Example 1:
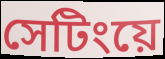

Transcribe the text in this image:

সেটিংয়ে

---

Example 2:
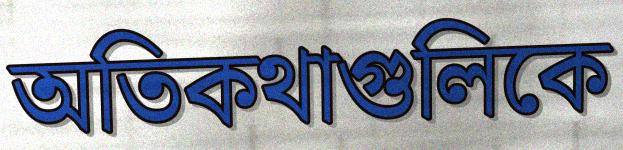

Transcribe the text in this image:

অতিকথাগুলিকে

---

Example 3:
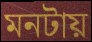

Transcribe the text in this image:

মনটায়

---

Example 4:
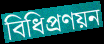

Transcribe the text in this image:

বিধিপ্রণয়ন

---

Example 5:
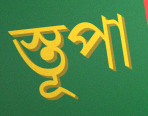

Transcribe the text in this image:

স্তূপা